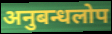
अनुबन्धलोप